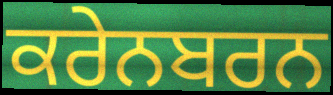
ਕਰੇਨਬਰਨ